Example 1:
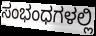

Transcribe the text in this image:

ಸಂಭಂಧಗಳಲ್ಲಿ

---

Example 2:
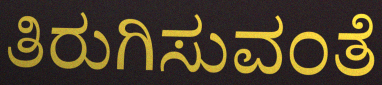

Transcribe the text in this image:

ತಿರುಗಿಸುವಂತೆ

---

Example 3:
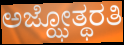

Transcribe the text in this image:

ಅಜ್ಝೋತ್ಥರತಿ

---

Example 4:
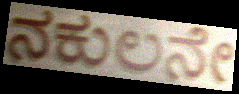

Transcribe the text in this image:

ನಕುಲನೇ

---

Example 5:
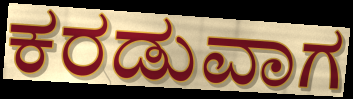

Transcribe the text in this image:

ಕರಡುವಾಗ